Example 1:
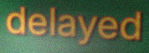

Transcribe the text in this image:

delayed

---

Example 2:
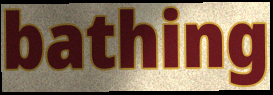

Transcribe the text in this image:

bathing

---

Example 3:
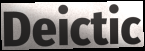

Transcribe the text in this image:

Deictic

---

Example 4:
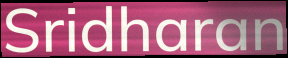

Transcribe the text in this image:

Sridharan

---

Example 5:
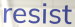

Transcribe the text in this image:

resist